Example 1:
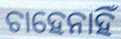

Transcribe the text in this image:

ଚାହେନାହିଁ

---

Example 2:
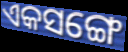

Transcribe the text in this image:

ଏକସଙ୍ଗେ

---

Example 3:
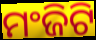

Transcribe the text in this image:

ମଂଜିଟି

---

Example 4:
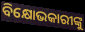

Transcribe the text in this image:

ବିକ୍ଷୋଭକାରୀଙ୍କୁ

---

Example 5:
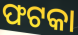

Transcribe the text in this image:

ଫଟକା